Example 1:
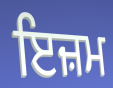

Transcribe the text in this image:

ਇਜ਼ਮ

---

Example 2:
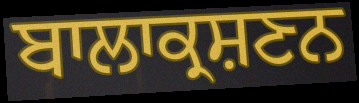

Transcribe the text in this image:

ਬਾਲਾਕ੍ਰਸ਼ਣਨ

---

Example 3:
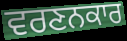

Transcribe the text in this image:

ਵਰਣਨਕਾਰ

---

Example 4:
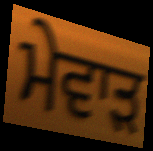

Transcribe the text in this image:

ਮੇਵਾੜ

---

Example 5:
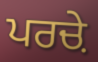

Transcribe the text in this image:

ਪਰਚ਼ੇ